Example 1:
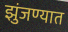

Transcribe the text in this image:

झुंजण्यात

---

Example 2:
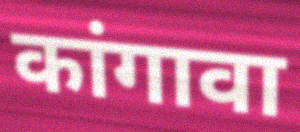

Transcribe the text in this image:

कांगावा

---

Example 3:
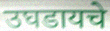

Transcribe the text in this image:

उघडायचे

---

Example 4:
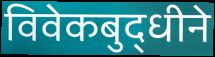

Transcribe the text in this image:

विवेकबुद्धीने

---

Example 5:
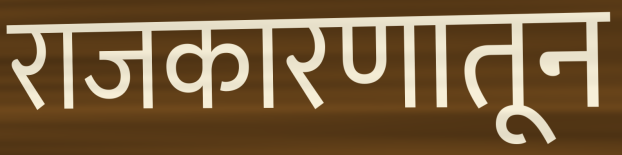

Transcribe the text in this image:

राजकारणातून